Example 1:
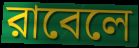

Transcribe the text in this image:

রাবেলে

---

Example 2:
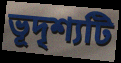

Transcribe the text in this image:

ভূদৃশ্যটি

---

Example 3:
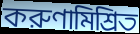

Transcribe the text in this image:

করুণামিশ্রিত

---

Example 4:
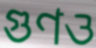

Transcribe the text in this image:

গুণও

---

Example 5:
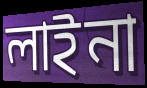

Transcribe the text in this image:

লাইনা